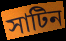
সাটিন